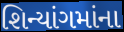
શિન્યાંગમાંના